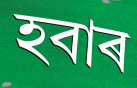
হবাৰ